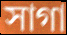
সাগা